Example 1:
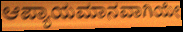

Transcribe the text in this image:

ಆಪ್ಯಾಯಮಾನವಾಗಿಯೇ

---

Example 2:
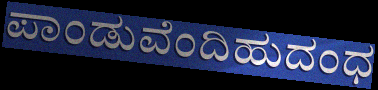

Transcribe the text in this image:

ಪಾಂಡುವೆಂದಿಹುದಂಧ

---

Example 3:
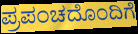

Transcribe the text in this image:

ಪ್ರಪಂಚದೊಂದಿಗೆ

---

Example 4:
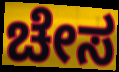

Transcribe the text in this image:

ಚೇಸ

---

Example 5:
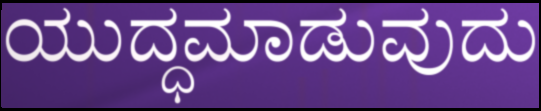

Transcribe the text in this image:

ಯುದ್ಧಮಾಡುವುದು